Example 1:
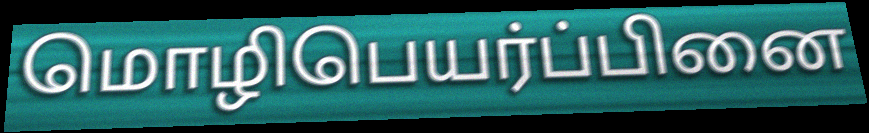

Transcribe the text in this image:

மொழிபெயர்ப்பினை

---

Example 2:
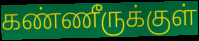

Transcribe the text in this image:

கண்ணீருக்குள்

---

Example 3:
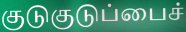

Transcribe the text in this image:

குடுகுடுப்பைச்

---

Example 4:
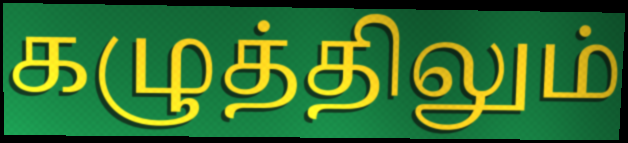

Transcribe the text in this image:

கழுத்திலும்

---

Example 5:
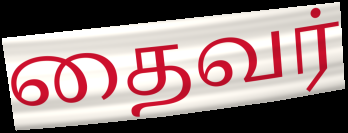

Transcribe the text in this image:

தைவர்